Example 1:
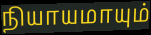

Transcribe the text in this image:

நியாயமாயும்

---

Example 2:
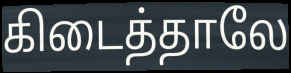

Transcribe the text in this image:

கிடைத்தாலே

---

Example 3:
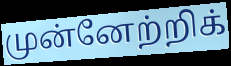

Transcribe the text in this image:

முன்னேற்றிக்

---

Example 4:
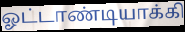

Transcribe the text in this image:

ஓட்டாண்டியாக்கி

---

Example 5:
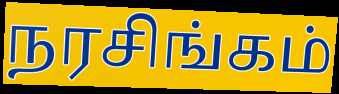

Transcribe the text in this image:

நரசிங்கம்